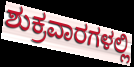
ಶುಕ್ರವಾರಗಳಲ್ಲಿ